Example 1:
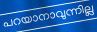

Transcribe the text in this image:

പറയാനാവുന്നില്ല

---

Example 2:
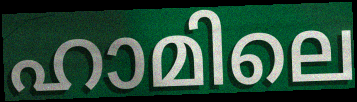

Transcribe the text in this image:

ഹാമിലെ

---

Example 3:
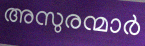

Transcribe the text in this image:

അസുരന്മാർ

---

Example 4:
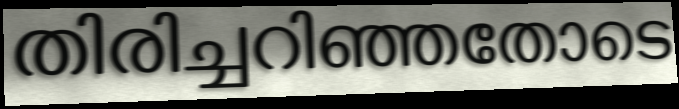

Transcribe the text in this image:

തിരിച്ചറിഞ്ഞതോടെ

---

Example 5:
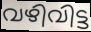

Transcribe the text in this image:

വഴിവിട്ട